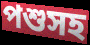
পশুসহ